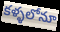
కళ్ళలోనూ